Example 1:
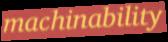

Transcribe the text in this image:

machinability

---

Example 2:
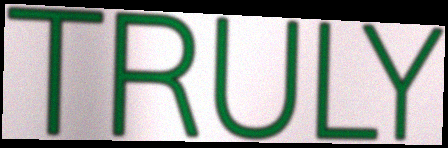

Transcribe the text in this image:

TRULY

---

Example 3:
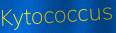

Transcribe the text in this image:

Kytococcus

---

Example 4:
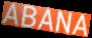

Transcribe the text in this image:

ABANA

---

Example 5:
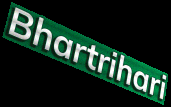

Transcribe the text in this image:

Bhartrihari